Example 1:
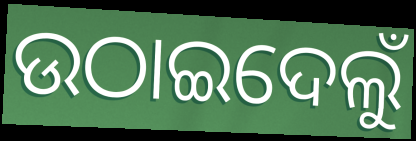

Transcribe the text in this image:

ଉଠାଇଦେଲୁଁ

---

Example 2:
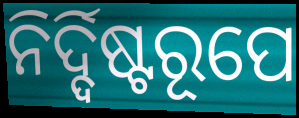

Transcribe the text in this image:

ନିର୍ଦ୍ଦିଷ୍ଟରୂପେ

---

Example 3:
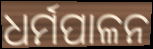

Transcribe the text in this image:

ଧର୍ମପାଳନ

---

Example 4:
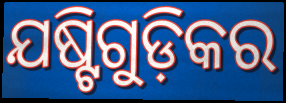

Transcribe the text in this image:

ଯଷ୍ଟିଗୁଡ଼ିକର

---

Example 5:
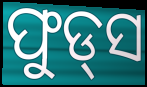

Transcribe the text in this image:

ଫୁଡ୍‌ସ